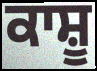
ਕਾਸ਼ੂ